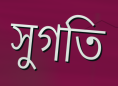
সুগতি